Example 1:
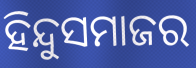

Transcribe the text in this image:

ହିନ୍ଦୁସମାଜର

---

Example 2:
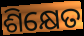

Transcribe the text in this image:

ଶିକ୍ଷେତ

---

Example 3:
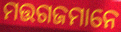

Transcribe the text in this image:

ମତ୍ତଗଜମାନେ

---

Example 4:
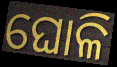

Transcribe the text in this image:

ଘୋଳି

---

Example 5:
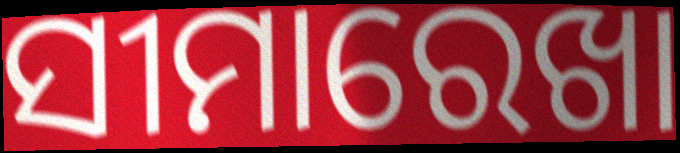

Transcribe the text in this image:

ସୀମାରେଖା